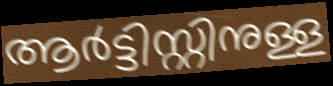
ആർട്ടിസ്റ്റിനുള്ള